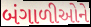
બંગાળીઓને